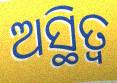
ଅସ୍ଥିତ୍ୱ